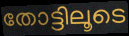
തോട്ടിലൂടെ